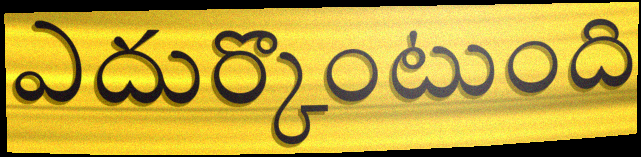
ఎదుర్కొంటుంది